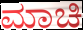
ಮಾಚಿ